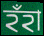
হঁহা